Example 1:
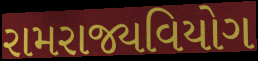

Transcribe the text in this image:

રામરાજ્યવિયોગ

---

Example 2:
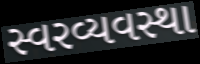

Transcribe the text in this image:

સ્વરવ્યવસ્થા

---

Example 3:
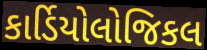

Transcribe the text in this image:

કાર્ડિયોલોજિકલ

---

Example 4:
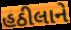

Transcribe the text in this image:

હઠીલાને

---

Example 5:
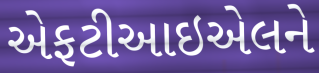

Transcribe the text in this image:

એફટીઆઇએલને